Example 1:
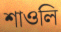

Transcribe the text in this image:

শাওলি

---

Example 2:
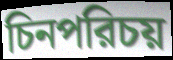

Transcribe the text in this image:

চিনপরিচয়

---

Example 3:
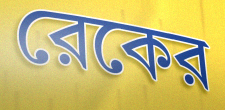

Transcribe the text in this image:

রেকের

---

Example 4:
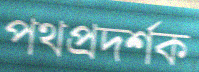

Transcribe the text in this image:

পথপ্রদর্শক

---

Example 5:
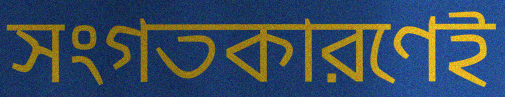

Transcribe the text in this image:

সংগতকারণেই